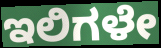
ಇಲಿಗಳೇ